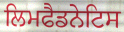
ਲਿਮਫੈਡਨੇਟਿਸ